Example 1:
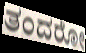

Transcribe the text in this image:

ತಂದರೋ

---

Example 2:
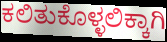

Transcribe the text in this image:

ಕಲಿತುಕೊಳ್ಳಲಿಕ್ಕಾಗಿ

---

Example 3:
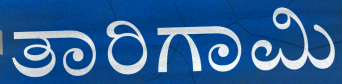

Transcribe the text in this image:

ತಾರಿಗಾಮಿ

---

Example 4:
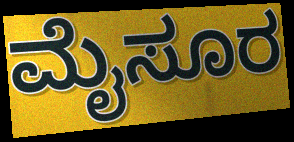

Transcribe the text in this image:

ಮೈಸೂರ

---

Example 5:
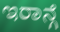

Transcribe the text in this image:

ಇರಾನ್ಗೆ